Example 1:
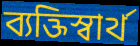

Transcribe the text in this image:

ব্যক্তিস্বার্থ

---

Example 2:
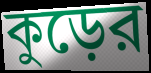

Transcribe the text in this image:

কুড়ের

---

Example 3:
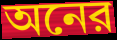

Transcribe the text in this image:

অনের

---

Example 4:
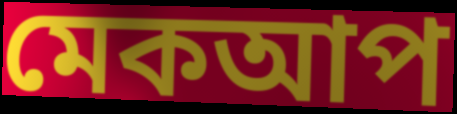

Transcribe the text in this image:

মেকআপ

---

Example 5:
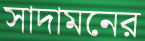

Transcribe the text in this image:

সাদামনের